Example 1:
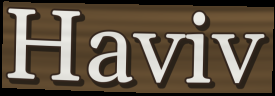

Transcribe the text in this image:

Haviv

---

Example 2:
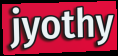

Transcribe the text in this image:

jyothy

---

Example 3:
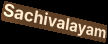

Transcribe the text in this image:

Sachivalayam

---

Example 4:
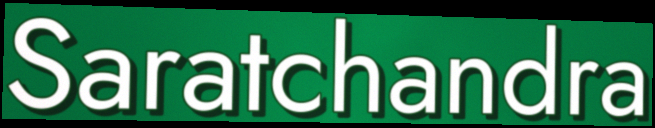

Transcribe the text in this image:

Saratchandra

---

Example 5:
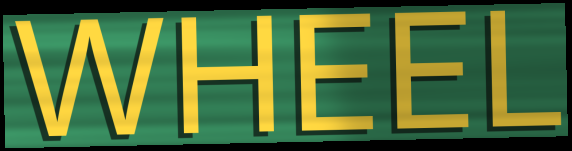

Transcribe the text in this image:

WHEEL